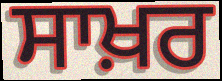
ਸਾਖ਼ਰ